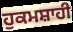
ਹੁਕਮਸ਼ਾਹੀ